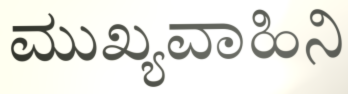
ಮುಖ್ಯವಾಹಿನಿ